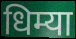
धिम्या